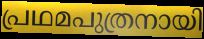
പ്രഥമപുത്രനായി